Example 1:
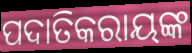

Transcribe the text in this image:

ପଦାତିକରାୟଙ୍କ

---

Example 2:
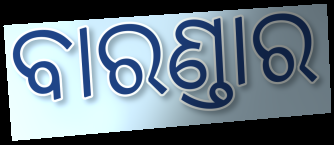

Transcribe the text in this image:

ବାରଣ୍ଡାର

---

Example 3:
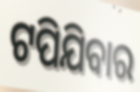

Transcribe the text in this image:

ଟପିଯିବାର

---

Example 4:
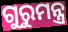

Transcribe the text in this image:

ଗୁରୁମନ୍ତ୍ର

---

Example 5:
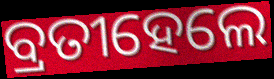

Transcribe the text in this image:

ବ୍ରତୀହେଲେ